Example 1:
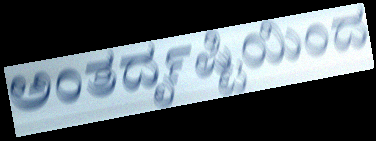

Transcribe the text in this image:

ಅಂತರ್ದೃಷ್ಟಿಯಿಂದ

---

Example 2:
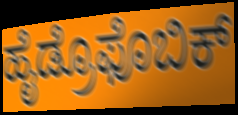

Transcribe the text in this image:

ಹೈಡ್ರೊಫೊಬಿಕ್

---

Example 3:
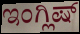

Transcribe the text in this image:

ಇಂಗ್ಲಿಷ್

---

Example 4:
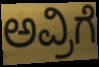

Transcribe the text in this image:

ಅವ್ರಿಗೆ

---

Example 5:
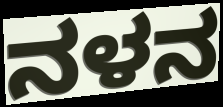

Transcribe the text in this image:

ನಳನ